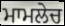
ਮਾਮਲੇਚ